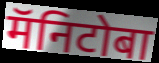
मॅनिटोबा